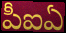
పీఐఏ